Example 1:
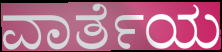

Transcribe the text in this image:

ವಾರ್ತೆಯ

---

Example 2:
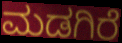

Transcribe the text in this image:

ಮಡಗಿರೆ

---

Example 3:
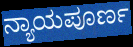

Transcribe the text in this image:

ನ್ಯಾಯಪೂರ್ಣ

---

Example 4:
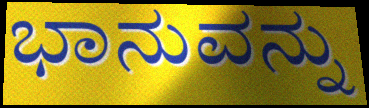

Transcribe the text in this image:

ಭಾನುವನ್ನು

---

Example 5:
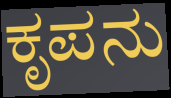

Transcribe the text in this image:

ಕೃಪನು